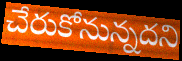
చేరుకోనున్నదని